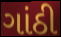
ગાંઠી